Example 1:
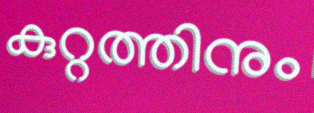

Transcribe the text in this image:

കുറ്റത്തിനും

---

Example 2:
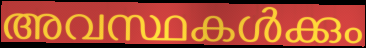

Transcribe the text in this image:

അവസ്ഥകൾക്കും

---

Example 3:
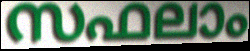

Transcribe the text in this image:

സഫലാം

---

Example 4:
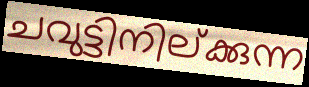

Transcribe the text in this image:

ചവുട്ടിനില്ക്കുന്ന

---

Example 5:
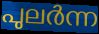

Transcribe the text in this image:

പുലർന്ന